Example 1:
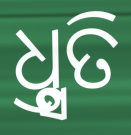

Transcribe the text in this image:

ଧ୍ତ୍ସତି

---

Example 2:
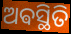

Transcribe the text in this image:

ଅଵସ୍ଥିତି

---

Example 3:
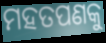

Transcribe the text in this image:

ମହତପଣକୁ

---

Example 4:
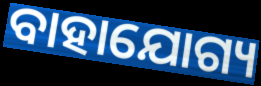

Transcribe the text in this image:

ବାହାଯୋଗ୍ୟ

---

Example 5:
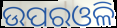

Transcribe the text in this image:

ଉପରଓଳି